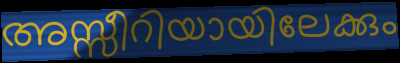
അസ്സീറിയായിലേക്കും